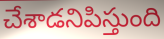
చేశాడనిపిస్తుంది